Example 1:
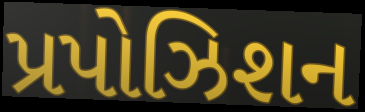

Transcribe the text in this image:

પ્રપોઝિશન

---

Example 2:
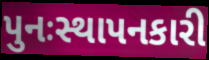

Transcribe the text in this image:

પુનઃસ્થાપનકારી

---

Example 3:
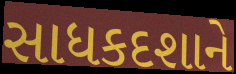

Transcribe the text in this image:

સાધકદશાને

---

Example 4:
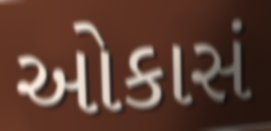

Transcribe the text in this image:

ઓકાસં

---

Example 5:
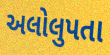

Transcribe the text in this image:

અલોલુપતા